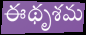
ఈథృశమ